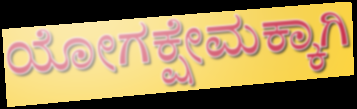
ಯೋಗಕ್ಷೇಮಕ್ಕಾಗಿ